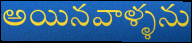
అయినవాళ్ళను